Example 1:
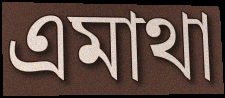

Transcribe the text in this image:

এমাথা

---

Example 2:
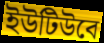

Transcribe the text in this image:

ইউটিউবে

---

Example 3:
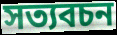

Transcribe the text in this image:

সত্যবচন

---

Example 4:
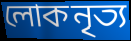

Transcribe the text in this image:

লোকনৃত্য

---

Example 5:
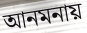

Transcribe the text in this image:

আনমনায়